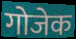
गोजेक